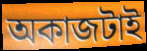
অকাজটাই